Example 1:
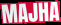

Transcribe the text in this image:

MAJHA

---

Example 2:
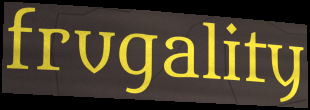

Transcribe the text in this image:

frugality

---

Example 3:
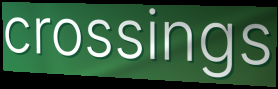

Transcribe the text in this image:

crossings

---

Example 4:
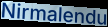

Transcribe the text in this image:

Nirmalendu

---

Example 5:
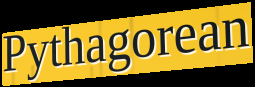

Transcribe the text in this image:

Pythagorean